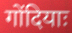
गोंदियाः